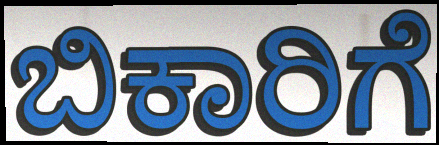
ಬಿಕಾರಿಗೆ